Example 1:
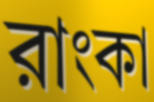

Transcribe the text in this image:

রাংকা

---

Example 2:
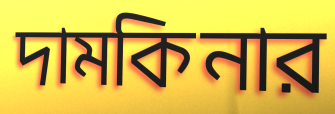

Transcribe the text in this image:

দামকিনার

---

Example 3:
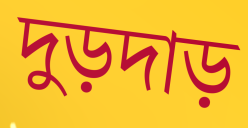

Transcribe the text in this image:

দুড়দাড়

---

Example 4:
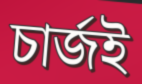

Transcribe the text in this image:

চার্জই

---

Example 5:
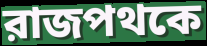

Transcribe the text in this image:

রাজপথকে